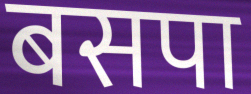
बसपा